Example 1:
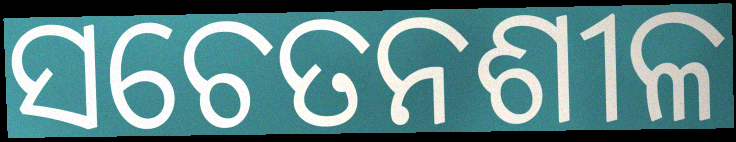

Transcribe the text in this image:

ସଚେତନଶୀଳ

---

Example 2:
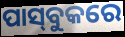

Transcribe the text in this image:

ପାସ୍‌ବୁକରେ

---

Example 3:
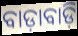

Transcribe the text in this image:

ବାଡ଼ାବାଡ଼ି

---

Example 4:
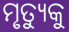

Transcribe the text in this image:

ମୃତ୍ୟୁକୁ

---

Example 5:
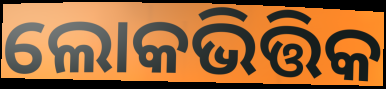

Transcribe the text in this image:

ଲୋକଭିତ୍ତିକ